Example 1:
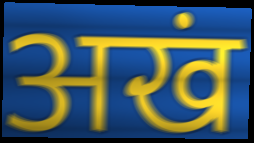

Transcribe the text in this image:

अखं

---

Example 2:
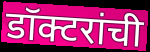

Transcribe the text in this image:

डॉक्टरांची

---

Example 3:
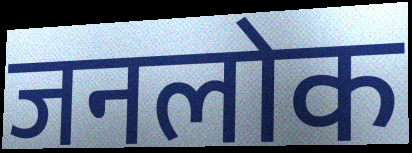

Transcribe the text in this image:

जनलोक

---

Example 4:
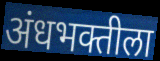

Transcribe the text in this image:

अंधभक्तीला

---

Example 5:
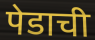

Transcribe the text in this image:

पेडाची